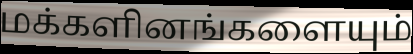
மக்களினங்களையும்